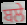
ਬਲੇ